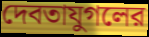
দেবতাযুগলের